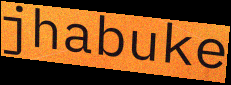
jhabuke